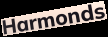
Harmonds